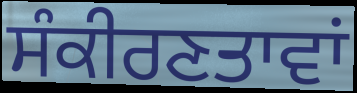
ਸੰਕੀਰਣਤਾਵਾਂ